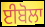
ਈਬੋਲਾ